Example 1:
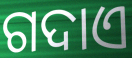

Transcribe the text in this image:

ଗଦାଏ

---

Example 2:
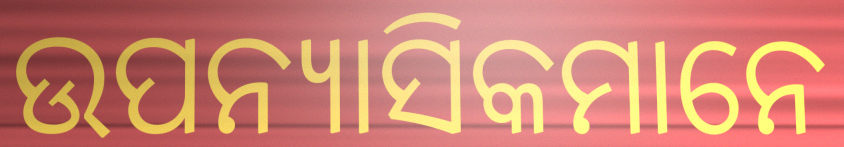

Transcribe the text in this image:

ଉପନ୍ୟାସିକମାନେ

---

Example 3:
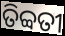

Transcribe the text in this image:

ତିବ୍ବତୀ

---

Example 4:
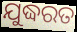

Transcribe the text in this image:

ଯୁଦ୍ଧରତ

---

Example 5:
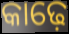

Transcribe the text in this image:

କାଢ଼େ